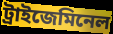
ট্ৰাইজেমিনেল